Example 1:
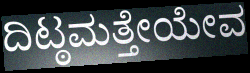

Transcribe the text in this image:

ದಿಟ್ಠಮತ್ತೇಯೇವ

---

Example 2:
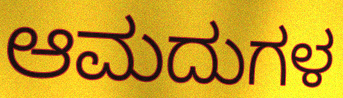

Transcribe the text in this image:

ಆಮದುಗಳ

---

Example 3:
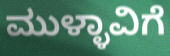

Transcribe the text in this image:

ಮುಳ್ಳಾವಿಗೆ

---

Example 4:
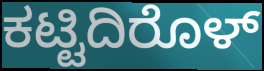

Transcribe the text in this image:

ಕಟ್ಟಿದಿರೊಳ್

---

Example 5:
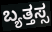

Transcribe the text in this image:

ಬ್ಯತ್ತಸ್ಸ